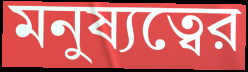
মনুষ্যত্বের